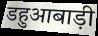
डहुआबाड़ी